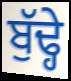
ਬੁੱਢ੍ਹੇ